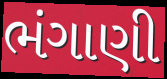
ભંગાણી